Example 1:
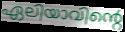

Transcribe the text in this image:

ഏലിയാവിന്റെ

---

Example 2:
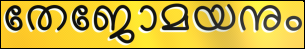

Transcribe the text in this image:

തേജോമയനും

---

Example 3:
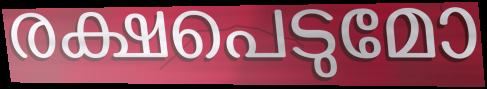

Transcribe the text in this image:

രക്ഷപെടുമോ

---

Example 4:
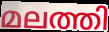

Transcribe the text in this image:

മലത്തി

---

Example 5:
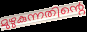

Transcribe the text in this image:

മുഴുകുന്നതിന്റെ